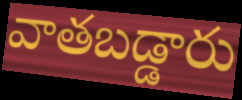
వాతబడ్డారు